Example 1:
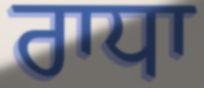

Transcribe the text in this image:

ਰਾਧਾ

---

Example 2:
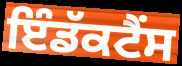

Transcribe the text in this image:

ਇੰਡੱਕਟੈਂਸ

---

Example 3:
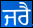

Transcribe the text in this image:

ਜਰੈ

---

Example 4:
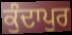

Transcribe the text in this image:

ਕੁੰਦਾਪੁਰ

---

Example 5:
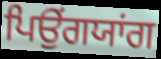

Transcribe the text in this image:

ਪਿਉਂਗਯਾਂਗ